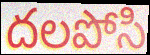
దలపోసి